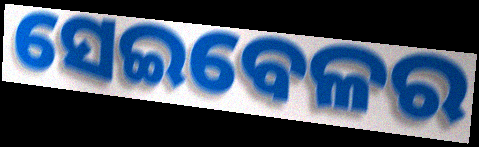
ସେଇବେଳର